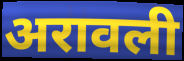
अरावली